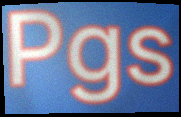
Pgs